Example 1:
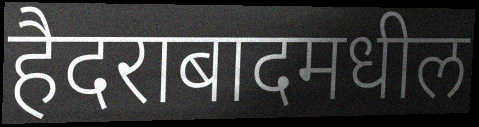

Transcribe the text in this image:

हैदराबादमधील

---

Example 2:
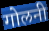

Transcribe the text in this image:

गोलनी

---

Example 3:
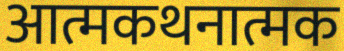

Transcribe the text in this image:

आत्मकथनात्मक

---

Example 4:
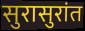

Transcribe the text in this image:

सुरासुरांत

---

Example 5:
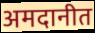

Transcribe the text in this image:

अमदानीत